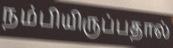
நம்பியிருப்பதால்